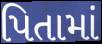
પિતામાં